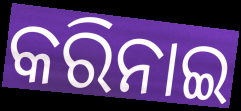
କରିନାଇ